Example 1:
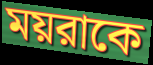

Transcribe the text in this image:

ময়রাকে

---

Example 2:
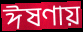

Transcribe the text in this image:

ঈষণায়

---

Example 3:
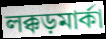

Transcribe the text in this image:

লক্কড়মার্কা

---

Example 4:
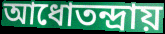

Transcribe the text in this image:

আধোতন্দ্রায়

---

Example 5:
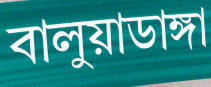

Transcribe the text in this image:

বালুয়াডাঙ্গা